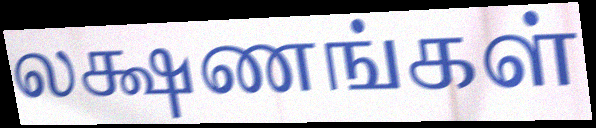
லக்ஷணங்கள்